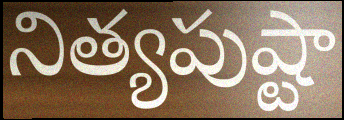
నిత్యపుష్టా